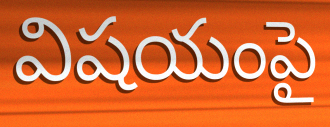
విషయంపై